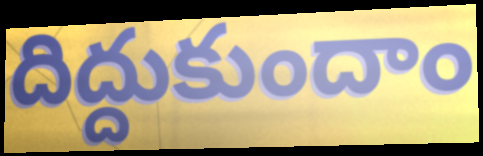
దిద్దుకుందాం